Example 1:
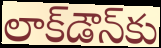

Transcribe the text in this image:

లాక్‌డౌన్‌కు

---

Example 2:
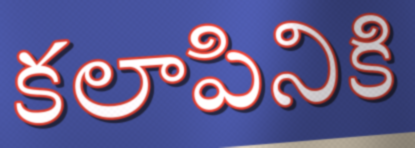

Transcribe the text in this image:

కలాపినికి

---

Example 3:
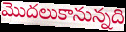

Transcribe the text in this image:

మొదలుకానున్నది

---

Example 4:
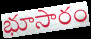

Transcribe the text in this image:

భూసారం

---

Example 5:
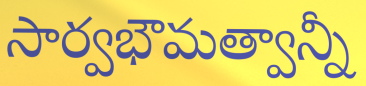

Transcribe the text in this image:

సార్వభౌమత్వాన్నీ